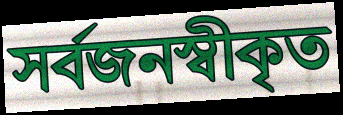
সর্বজনস্বীকৃত